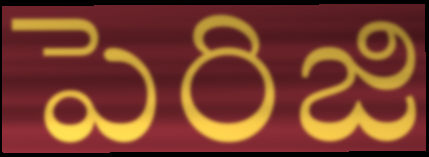
పెరిజి